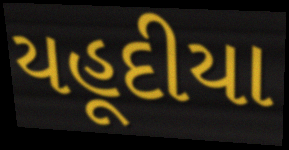
યહૂદીયા